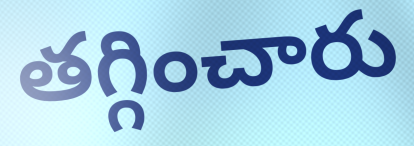
తగ్గించారు